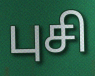
புசி